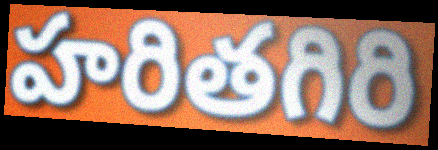
హరితగిరి